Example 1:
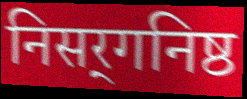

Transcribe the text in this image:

निसर्गनिष्ठ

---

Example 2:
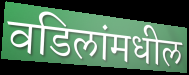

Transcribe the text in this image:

वडिलांमधील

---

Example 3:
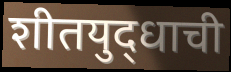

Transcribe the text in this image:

शीतयुद्धाची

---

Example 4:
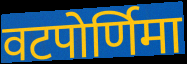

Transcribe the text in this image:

वटपोर्णिमा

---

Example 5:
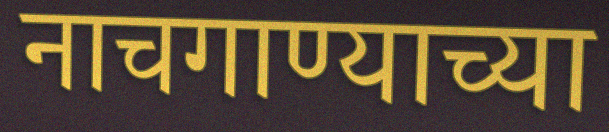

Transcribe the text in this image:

नाचगाण्याच्या